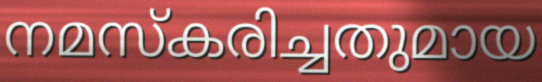
നമസ്കരിച്ചതുമായ